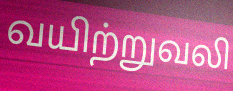
வயிற்றுவலி